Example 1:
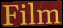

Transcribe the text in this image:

Film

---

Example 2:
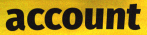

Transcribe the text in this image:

account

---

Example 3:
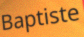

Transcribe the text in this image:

Baptiste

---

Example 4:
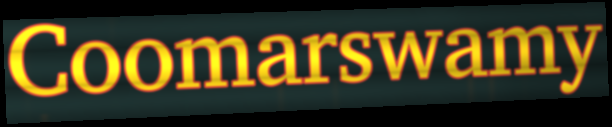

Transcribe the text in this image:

Coomarswamy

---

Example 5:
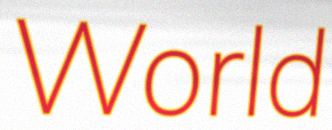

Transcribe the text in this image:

World